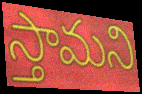
స్తామని